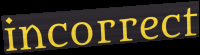
incorrect